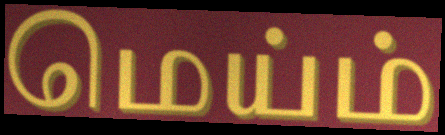
மெய்ம்